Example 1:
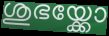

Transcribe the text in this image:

ശുഭയ്ക്കോ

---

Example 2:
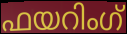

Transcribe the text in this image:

ഫയറിംഗ്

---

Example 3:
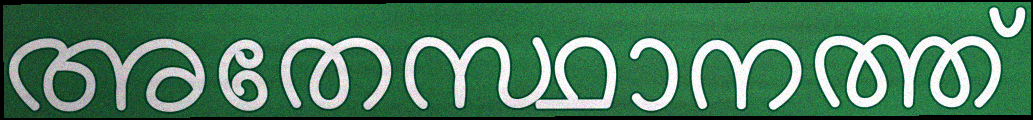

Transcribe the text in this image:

അതേസ്ഥാനത്ത്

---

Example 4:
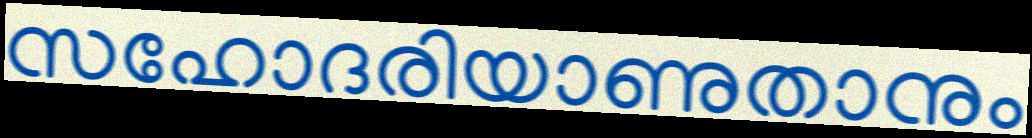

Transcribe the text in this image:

സഹോദരിയാണുതാനും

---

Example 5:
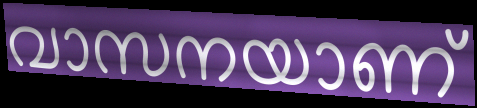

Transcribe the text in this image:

വാസനയാണ്